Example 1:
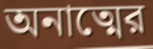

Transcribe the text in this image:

অনাত্মের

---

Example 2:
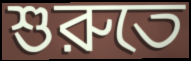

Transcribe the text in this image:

শুরুতে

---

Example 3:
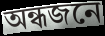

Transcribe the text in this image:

অন্ধজনে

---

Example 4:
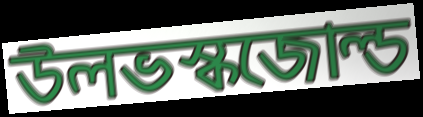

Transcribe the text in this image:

উলভস্কজোল্ড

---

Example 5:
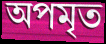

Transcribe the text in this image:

অপমৃত